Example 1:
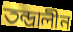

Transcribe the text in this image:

তন্দ্রালীন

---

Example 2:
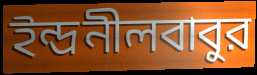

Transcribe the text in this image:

ইন্দ্রনীলবাবুর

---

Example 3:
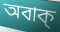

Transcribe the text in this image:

অবাক্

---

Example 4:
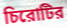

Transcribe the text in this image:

চিরোটির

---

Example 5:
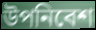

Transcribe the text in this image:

উপনিবেশ